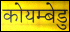
कोयम्बेडु